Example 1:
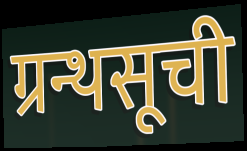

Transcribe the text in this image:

ग्रन्थसूची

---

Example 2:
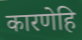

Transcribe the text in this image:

कारणेहि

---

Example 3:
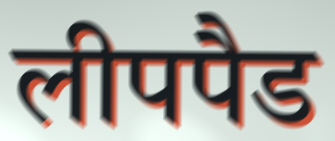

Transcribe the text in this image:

लीपपैड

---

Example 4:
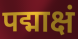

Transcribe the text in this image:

पद्माक्षं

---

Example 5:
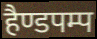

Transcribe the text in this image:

हैण्डपम्प